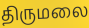
திருமலை